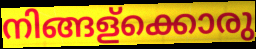
നിങ്ങള്ക്കൊരു